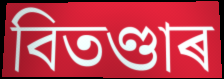
বিতণ্ডাৰ